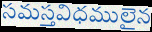
సమస్తవిధములైన